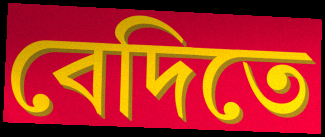
বেদিতে